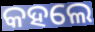
କହଲେ